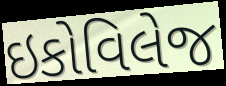
ઇકોવિલેજ